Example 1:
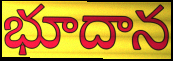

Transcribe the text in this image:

భూదాన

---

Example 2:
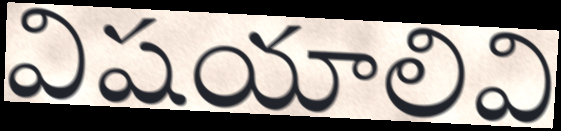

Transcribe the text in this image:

విషయాలివి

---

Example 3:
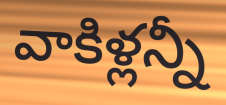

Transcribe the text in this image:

వాకిళ్లన్నీ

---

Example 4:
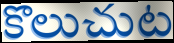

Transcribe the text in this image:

కొలుచుట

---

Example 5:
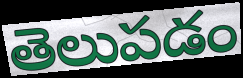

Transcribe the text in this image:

తెలుపడం